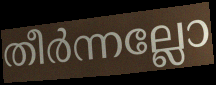
തീർന്നല്ലോ